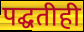
पद्घतीही